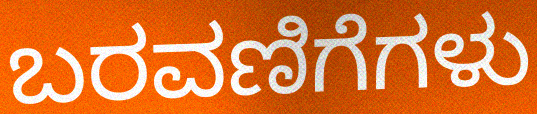
ಬರವಣಿಗೆಗಳು